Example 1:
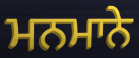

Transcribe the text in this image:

ਮਨਮਾਨੇ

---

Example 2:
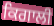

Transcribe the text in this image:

ਕਿਗਾਲੀ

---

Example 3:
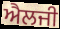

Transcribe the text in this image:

ਐਲਜੀ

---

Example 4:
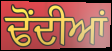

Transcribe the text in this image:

ਢੋਂਦੀਆਂ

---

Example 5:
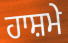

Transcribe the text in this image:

ਹਾਸ਼ਮੇ